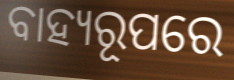
ବାହ୍ୟରୂପରେ